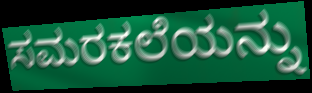
ಸಮರಕಲೆಯನ್ನು